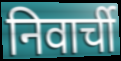
निवार्ची